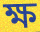
ক্ষ